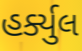
હર્ક્યુલ